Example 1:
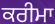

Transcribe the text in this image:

ਕਰੀਮਾ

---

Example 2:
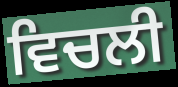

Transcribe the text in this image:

ਵਿਚਲੀ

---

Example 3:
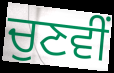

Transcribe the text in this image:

ਚੁਣਵੀਂ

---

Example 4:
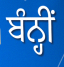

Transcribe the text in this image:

ਬੰਨ੍ਹੀਂ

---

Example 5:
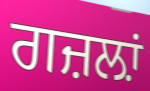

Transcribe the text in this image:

ਗਜ਼ਲ਼ਾਂ